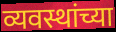
व्यवस्थांच्या